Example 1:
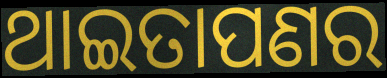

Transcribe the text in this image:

ଥାଇତାପଣର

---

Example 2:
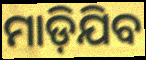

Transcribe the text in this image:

ମାଡ଼ିଯିବ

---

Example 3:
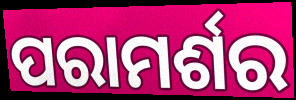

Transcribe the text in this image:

ପରାମର୍ଶର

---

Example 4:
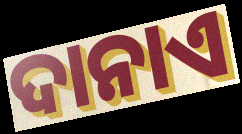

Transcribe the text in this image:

ଦାନାଏ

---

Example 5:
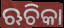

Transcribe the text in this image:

ଋଚିକା